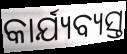
କାର୍ଯ୍ୟବ୍ୟସ୍ତ